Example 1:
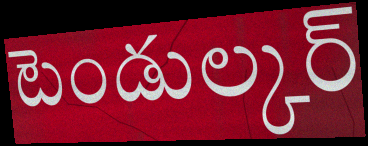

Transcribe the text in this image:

టెండుల్కర్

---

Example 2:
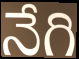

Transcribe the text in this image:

నేగి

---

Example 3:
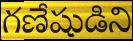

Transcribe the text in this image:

గణేషుడిని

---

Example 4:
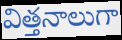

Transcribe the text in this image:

విత్తనాలుగా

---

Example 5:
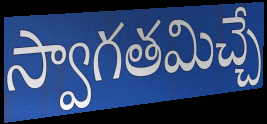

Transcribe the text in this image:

స్వాగతమిచ్చే